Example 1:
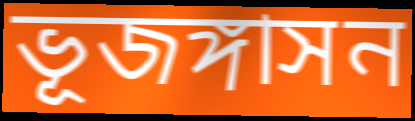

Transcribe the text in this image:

ভূজঙ্গাসন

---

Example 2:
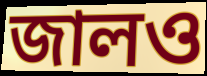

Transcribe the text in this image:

জালও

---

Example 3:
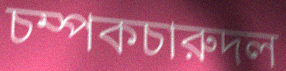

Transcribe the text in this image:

চম্পকচারুদল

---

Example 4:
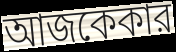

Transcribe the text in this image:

আজকেকার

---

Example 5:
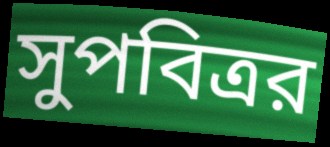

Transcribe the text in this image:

সুপবিত্রর